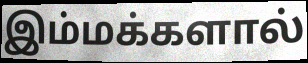
இம்மக்களால்